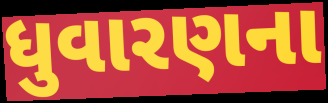
ધુવારણના